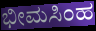
ಭೀಮಸಿಂಹ